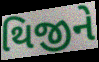
થિજીને